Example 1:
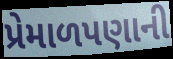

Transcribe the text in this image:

પ્રેમાળપણાની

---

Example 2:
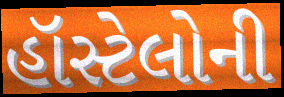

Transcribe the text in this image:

હૉસ્ટેલોની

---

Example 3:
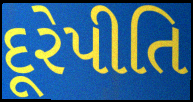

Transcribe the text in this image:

દૂરેપીતિ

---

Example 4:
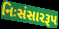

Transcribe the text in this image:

નિઃસંસારરૂપ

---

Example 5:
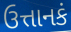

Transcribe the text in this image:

ઉત્તાનકં